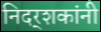
निदर्शकांनी